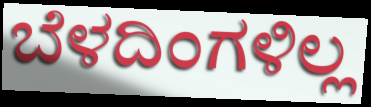
ಬೆಳದಿಂಗಳಿಲ್ಲ